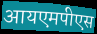
आयएमपीएस